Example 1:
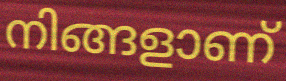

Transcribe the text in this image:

നിങ്ങളാണ്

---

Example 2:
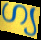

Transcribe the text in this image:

ഗ്യ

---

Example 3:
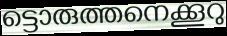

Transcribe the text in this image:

ട്ടൊരുത്തനെക്കൂറു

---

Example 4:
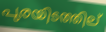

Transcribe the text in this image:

പുരയിടത്തില്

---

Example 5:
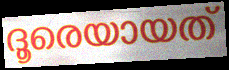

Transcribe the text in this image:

ദൂരെയായത്